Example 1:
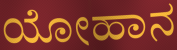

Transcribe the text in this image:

ಯೋಹಾನ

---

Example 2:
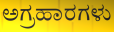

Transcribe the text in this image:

ಅಗ್ರಹಾರಗಳು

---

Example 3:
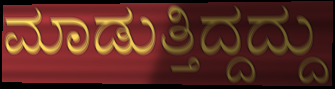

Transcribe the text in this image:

ಮಾಡುತ್ತಿದ್ದದ್ದು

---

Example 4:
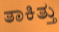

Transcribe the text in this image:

ತಾಕಿತ್ತು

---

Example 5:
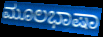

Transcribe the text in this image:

ಮೂಲಭಾಷಾ